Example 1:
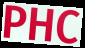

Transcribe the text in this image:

PHC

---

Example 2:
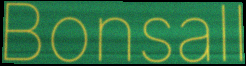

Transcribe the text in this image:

Bonsall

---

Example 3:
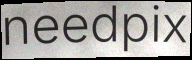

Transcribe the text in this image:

needpix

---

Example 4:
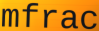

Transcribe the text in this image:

mfrac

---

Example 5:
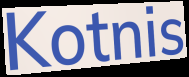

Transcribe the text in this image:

Kotnis